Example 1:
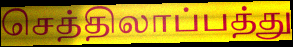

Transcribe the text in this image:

செத்திலாப்பத்து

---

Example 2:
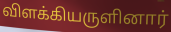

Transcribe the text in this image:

விளக்கியருளினார்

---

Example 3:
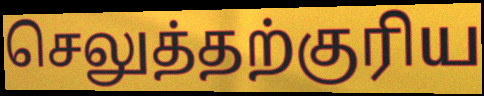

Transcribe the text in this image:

செலுத்தற்குரிய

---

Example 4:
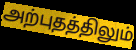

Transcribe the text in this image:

அற்புதத்திலும்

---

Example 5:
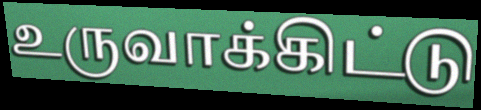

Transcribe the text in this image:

உருவாக்கிட்டு